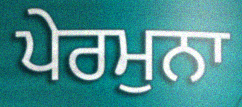
ਪੇਰਮੁਨਾ